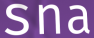
sna